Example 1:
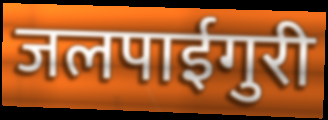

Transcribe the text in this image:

जलपाईगुरी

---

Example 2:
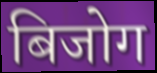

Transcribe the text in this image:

बिजोग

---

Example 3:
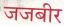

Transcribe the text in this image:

जजबीर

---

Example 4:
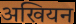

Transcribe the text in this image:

अखियन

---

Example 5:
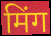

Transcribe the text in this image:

मिंग